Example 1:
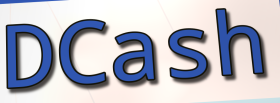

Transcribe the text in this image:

DCash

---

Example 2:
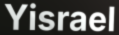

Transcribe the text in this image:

Yisrael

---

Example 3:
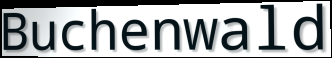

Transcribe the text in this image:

Buchenwald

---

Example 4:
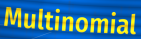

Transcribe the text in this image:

Multinomial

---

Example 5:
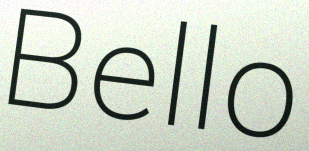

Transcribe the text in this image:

Bello